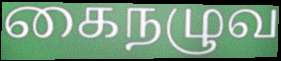
கைநழுவ